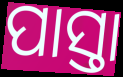
ପାସ୍ତା